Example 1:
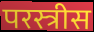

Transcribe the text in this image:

परस्त्रीस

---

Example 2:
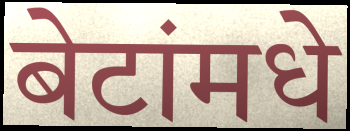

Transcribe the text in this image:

बेटांमधे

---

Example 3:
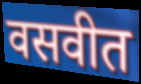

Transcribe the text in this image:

वसवीत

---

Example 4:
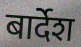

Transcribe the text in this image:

बार्देश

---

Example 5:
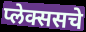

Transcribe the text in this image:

प्लेक्ससचे